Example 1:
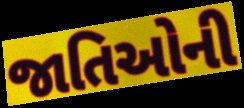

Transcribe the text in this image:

જાતિઓની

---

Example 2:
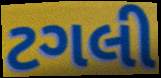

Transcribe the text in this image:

ટગલી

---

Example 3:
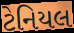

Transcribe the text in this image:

ટેનિયલ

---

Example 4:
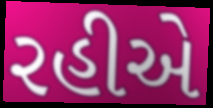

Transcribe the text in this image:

રહીએ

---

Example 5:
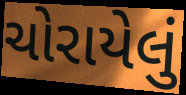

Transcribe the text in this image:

ચોરાયેલું